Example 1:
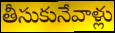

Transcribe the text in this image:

తీసుకునేవాళ్లు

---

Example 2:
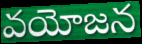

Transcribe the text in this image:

వయోజన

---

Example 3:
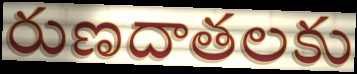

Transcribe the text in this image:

రుణదాతలకు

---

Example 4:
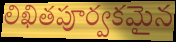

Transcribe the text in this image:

లిఖితపూర్వకమైన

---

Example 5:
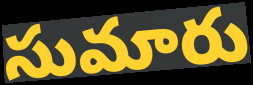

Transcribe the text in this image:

సుమారు